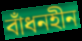
বাঁধনহীন